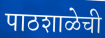
पाठशाळेची